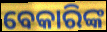
ବେକାରିଙ୍କ